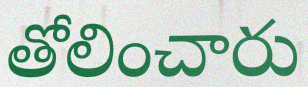
తోలించారు